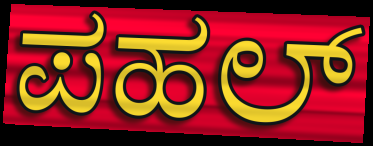
ಪಹಲ್